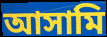
আসামি